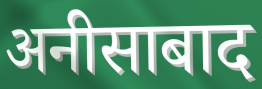
अनीसाबाद